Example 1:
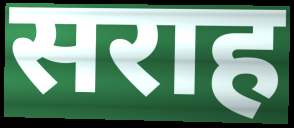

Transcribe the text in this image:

सराह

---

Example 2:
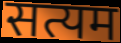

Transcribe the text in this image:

सत्यम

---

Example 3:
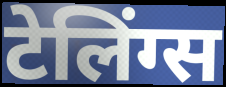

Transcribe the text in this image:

टेलिंग्स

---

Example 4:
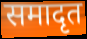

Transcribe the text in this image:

समादृत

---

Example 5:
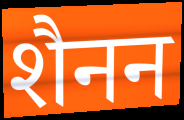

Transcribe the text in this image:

शैनन